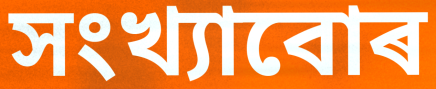
সংখ্যাবোৰ